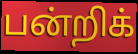
பன்றிக்